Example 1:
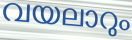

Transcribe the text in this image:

വയലാറും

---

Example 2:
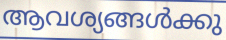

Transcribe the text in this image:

ആവശ്യങ്ങൾക്കു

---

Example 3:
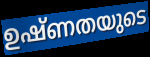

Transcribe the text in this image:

ഉഷ്ണതയുടെ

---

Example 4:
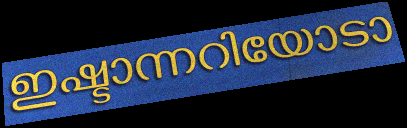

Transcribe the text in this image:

ഇഷ്ടാന്നറിയോടാ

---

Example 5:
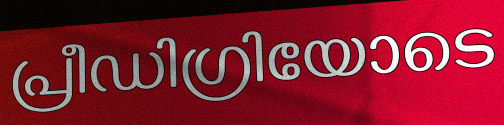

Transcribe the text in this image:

പ്രീഡിഗ്രിയോടെ